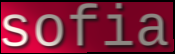
sofia